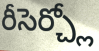
రీసెర్చ్లో